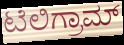
ಟೆಲಿಗ್ರಾಮ್